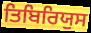
ਤਿਬਿਰਿਯੁਸ